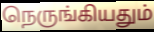
நெருங்கியதும்